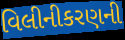
વિલીનીકરણની